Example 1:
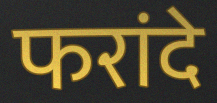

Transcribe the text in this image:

फरांदे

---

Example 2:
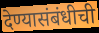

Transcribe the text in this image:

देण्यासंबंधीची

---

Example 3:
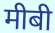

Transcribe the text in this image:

मीबी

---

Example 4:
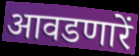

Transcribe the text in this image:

आवडणारें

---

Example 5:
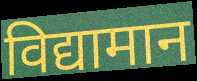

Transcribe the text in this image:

विद्यामान